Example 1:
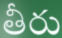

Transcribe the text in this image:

తీరు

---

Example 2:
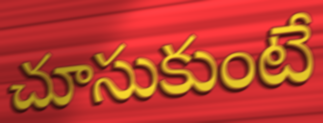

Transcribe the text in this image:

చూసుకుంటే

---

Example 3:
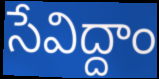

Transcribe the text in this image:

సేవిద్దాం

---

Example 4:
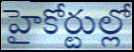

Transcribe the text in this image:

హైకోర్టుల్లో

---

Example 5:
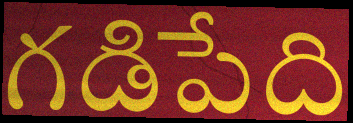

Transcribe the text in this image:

గడిపేది